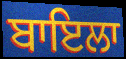
ਬਾਇਲਾ